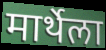
मार्थेला